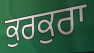
ਕੁਰਕੁਰਾ